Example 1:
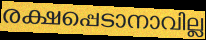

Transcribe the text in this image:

രക്ഷപ്പെടാനാവില്ല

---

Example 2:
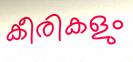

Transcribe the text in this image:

കീരികളും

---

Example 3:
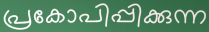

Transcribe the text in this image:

പ്രകോപിപ്പിക്കുന്ന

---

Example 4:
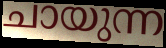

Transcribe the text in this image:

ചായുന്ന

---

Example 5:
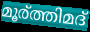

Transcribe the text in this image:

മൂര്ത്തിമദ്